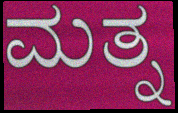
ಮತ್ನ